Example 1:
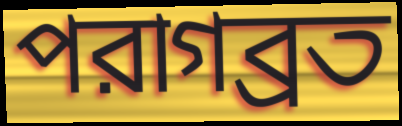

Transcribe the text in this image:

পরাগব্রত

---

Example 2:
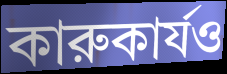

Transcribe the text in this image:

কারুকার্যও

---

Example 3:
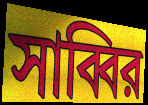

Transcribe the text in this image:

সাব্বির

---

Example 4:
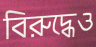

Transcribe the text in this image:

বিরুদ্ধেও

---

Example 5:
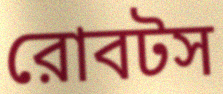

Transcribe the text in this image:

রোবটস